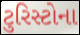
ટુરિસ્ટોના